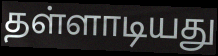
தள்ளாடியது